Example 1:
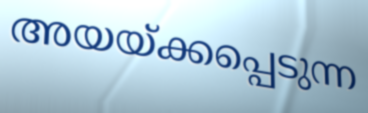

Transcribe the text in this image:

അയയ്ക്കപ്പെടുന്ന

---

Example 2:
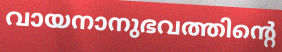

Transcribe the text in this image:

വായനാനുഭവത്തിന്റെ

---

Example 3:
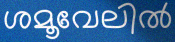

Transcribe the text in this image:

ശമൂവേലിൽ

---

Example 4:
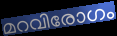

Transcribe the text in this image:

മറവിരോഗം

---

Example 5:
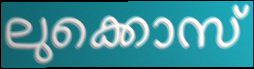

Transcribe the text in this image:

ലുക്കൊസ്